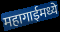
महागाईमध्ये